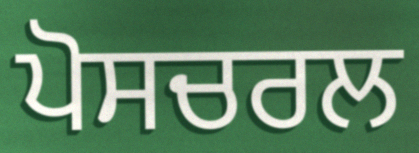
ਪੋਸਚਰਲ